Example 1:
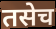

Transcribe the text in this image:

तसेच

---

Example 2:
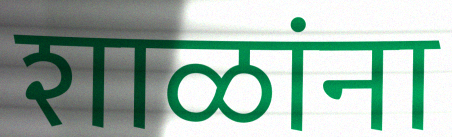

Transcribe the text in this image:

शाळांना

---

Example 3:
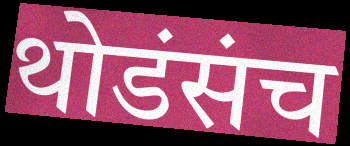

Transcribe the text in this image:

थोडंसंच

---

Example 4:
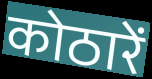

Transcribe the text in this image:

कोठारें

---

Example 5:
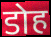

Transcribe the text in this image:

डोह